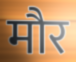
मौर